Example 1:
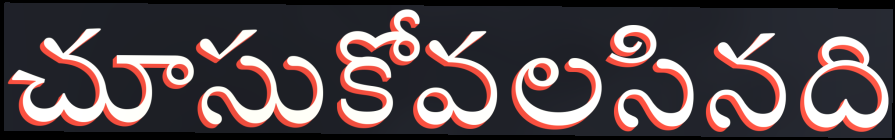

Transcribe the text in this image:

చూసుకోవలసినది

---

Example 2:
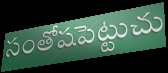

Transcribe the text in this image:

సంతోషపెట్టుచు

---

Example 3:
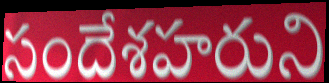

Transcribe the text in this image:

సందేశహరుని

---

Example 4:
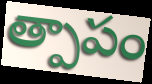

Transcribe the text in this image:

త్పాపం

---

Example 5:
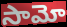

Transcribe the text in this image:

సామో